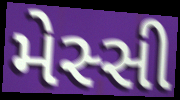
મેસ્સી